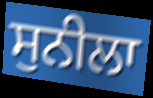
ਸੁਨੀਲਾ